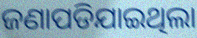
ଜଣାପଡିଯାଇଥିଲା